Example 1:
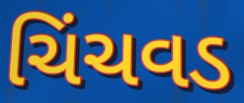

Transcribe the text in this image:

ચિંચવડ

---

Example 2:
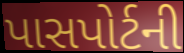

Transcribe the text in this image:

પાસપોર્ટની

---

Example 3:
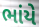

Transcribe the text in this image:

ભાંયે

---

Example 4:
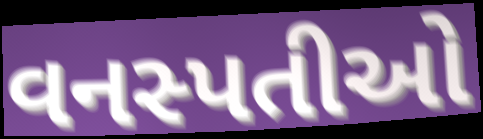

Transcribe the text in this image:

વનસ્પતીઓ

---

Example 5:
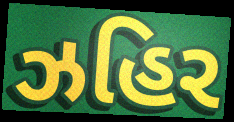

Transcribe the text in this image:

ઝહિર